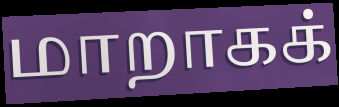
மாறாகக்